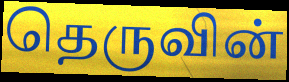
தெருவின்